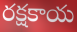
రక్షకాయ